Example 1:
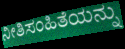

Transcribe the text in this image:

ನೀತಿಸಂಹಿತೆಯನ್ನು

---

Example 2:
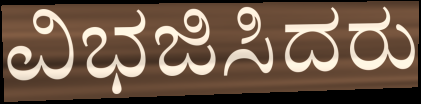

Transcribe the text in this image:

ವಿಭಜಿಸಿದರು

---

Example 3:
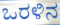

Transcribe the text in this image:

ಒರಳಿನ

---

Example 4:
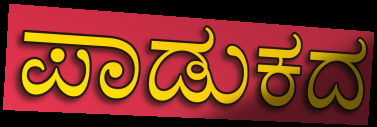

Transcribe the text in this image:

ಪಾಡುಕದ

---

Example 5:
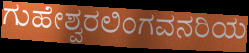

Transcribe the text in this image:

ಗುಹೇಶ್ವರಲಿಂಗವನರಿಯ